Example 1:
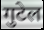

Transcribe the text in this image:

गुटेल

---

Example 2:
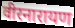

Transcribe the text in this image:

वीरनारायण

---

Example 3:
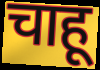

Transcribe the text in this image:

चाहू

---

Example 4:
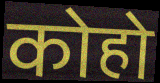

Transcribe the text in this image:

कोहो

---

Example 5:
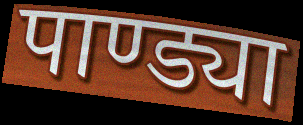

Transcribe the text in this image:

पाण्ड्या